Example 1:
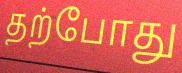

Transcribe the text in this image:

தற்போது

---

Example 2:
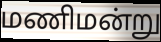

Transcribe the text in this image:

மணிமன்று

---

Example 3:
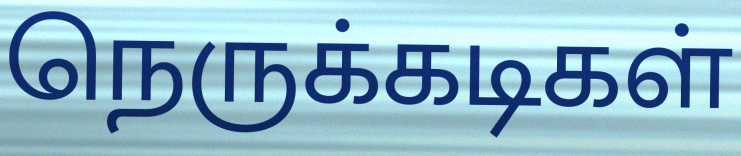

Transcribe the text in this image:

நெருக்கடிகள்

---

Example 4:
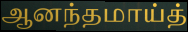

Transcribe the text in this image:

ஆனந்தமாய்த்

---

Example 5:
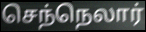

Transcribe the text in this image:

செந்நெலார்